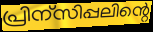
പ്രിന്സിപ്പലിന്റെ